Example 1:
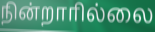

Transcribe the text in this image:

நின்றாரில்லை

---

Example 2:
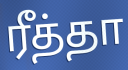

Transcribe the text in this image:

ரீத்தா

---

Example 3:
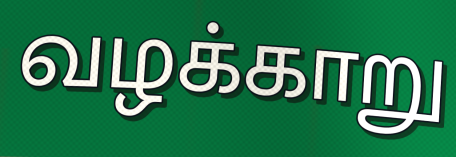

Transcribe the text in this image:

வழக்காறு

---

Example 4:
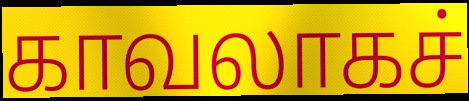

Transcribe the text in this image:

காவலாகச்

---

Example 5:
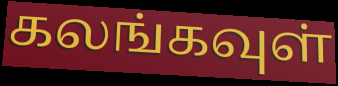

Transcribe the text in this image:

கலங்கவுள்